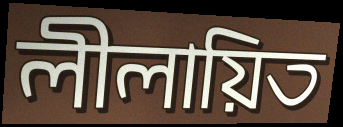
লীলায়িত